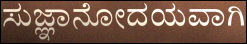
ಸುಜ್ಞಾನೋದಯವಾಗಿ